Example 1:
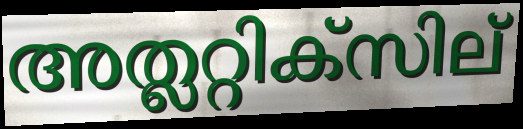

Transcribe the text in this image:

അത്ലറ്റിക്സില്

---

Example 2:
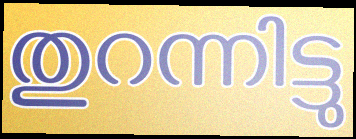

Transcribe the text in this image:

തുറന്നിട്ടു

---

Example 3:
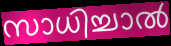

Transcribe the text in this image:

സാധിച്ചാൽ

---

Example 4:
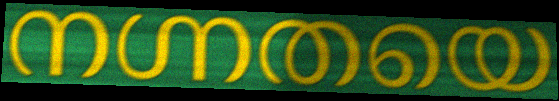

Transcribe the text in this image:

നഗ്നതയെ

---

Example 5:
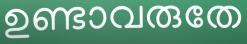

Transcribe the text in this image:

ഉണ്ടാവരുതേ